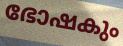
ഭോഷകും